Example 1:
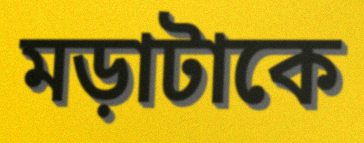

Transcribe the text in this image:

মড়াটাকে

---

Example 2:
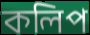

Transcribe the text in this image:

কলিপ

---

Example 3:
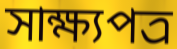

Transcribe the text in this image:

সাক্ষ্যপত্র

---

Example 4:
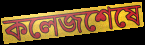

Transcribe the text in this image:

কলেজশেষে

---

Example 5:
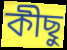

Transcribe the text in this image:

কীছু